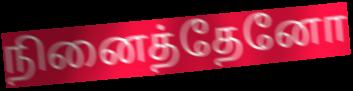
நினைத்தேனோ